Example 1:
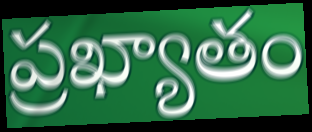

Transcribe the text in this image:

ప్రఖ్యాతం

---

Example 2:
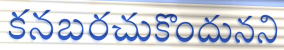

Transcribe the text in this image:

కనబరచుకొందునని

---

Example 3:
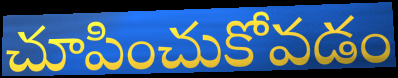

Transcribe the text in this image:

చూపించుకోవడం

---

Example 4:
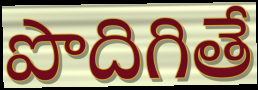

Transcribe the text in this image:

పొదిగితే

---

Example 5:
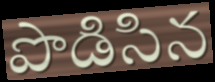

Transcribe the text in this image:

పొడిసిన